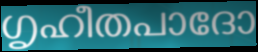
ഗൃഹീതപാദോ